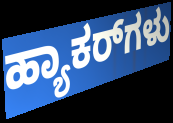
ಹ್ಯಾಕರ್‌ಗಳು